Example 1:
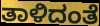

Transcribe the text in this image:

ತಾಳಿದಂತೆ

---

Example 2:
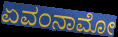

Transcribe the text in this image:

ಏವಂನಾಮೋ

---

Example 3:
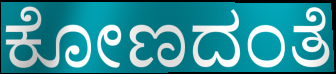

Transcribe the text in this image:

ಕೋಣದಂತೆ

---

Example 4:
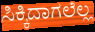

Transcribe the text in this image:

ಸಿಕ್ಕಿದಾಗಲೆಲ್ಲ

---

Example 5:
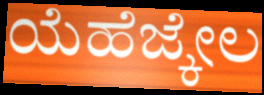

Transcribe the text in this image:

ಯೆಹೆಜ್ಕೇಲ